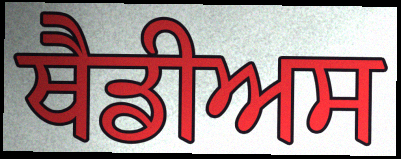
ਥੈਡੀਅਸ